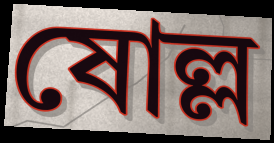
ষোল্ল